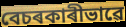
বেচৰকাৰীভাৱে